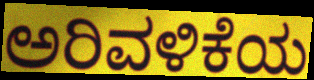
ಅರಿವಳಿಕೆಯ